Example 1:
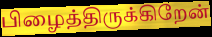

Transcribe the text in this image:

பிழைத்திருக்கிறேன்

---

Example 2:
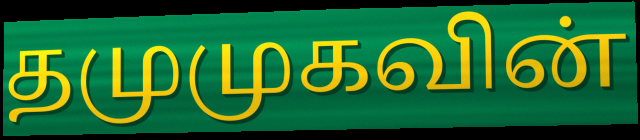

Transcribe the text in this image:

தமுமுகவின்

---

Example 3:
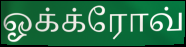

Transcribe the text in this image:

ஓக்க்ரோவ்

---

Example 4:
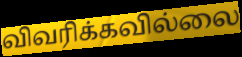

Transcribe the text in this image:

விவரிக்கவில்லை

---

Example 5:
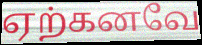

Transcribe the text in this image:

ஏற்கனவே